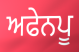
ਅਫੇਨਪੂ